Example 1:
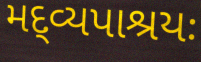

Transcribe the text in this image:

મદ્વ્યપાશ્રયઃ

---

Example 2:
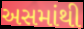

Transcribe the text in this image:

અસમાંથી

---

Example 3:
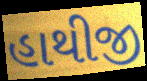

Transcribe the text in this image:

હાથીજી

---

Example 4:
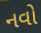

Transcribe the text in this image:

નવો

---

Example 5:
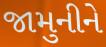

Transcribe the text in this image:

જામુનીને